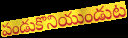
పండుకొనియుండుట